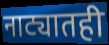
नाट्यातही